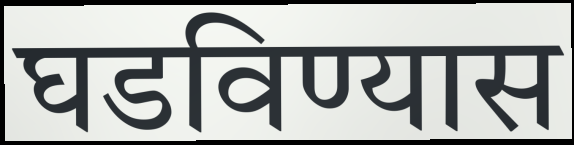
घडविण्यास